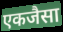
एकजैसा